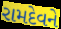
રામદેવને